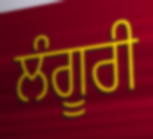
ਲੰਗੂਰੀ